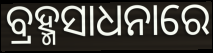
ବ୍ରହ୍ମସାଧନାରେ